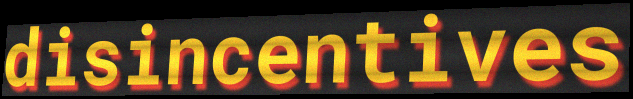
disincentives